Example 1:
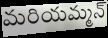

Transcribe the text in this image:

మరియమ్మన్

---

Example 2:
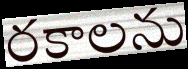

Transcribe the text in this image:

రకాలను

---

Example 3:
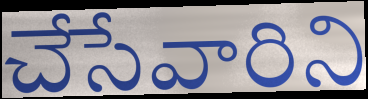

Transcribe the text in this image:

చేసేవారిని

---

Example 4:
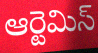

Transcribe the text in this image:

ఆర్టెమిస్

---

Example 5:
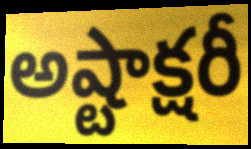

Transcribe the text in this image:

అష్టాక్షరీ